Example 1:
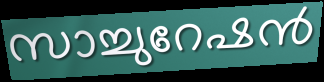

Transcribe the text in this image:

സാച്ചുറേഷൻ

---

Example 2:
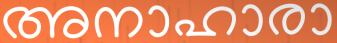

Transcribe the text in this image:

അനാഹാരാ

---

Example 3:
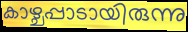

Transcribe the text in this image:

കാഴ്ചപ്പാടായിരുന്നു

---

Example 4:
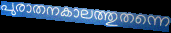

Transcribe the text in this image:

പുരാതനകാലത്തുതന്നെ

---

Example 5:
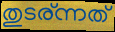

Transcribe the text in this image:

തുടര്ന്നത്